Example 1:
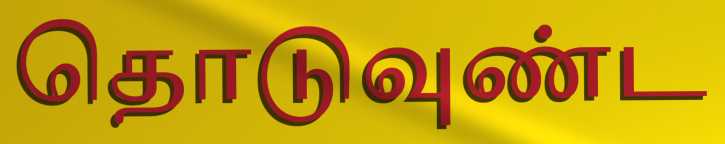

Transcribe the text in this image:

தொடுவுண்ட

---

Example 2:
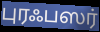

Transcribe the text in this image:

புரஃபஸர்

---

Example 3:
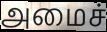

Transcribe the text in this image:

அமைச்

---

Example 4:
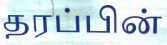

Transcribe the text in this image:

தரப்பின்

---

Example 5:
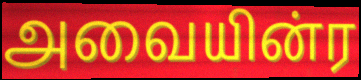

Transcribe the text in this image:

அவையின்ர